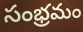
సంభ్రమం